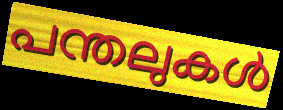
പന്തലുകൾ